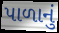
પાળાનું